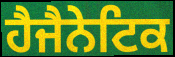
ਹੈਜੈਨੇਟਿਕ